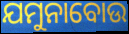
ଯମୁନାବୋଉ